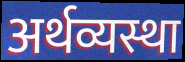
अर्थव्यस्था